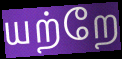
யற்றே